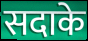
सदाके